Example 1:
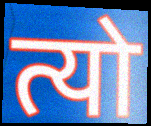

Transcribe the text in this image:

त्यो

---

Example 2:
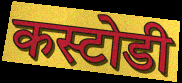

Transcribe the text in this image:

कस्टोडी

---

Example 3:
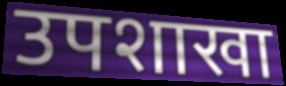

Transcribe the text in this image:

उपशाखा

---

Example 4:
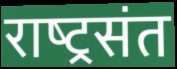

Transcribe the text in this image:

राष्ट्रसंत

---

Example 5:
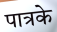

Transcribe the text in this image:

पात्रके